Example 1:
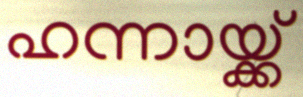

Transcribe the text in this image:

ഹന്നായ്ക്ക്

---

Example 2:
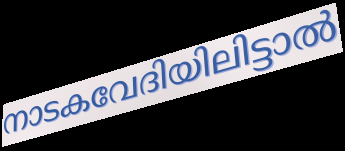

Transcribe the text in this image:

നാടകവേദിയിലിട്ടാൽ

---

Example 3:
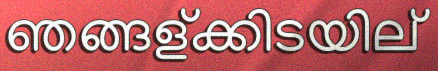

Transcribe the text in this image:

ഞങ്ങള്ക്കിടയില്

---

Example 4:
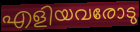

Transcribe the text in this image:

എളിയവരോടു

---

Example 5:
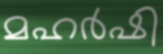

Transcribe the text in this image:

മഹർഷി